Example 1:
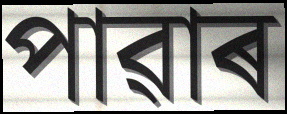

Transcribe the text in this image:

পাৱাৰ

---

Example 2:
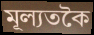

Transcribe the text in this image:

মূল্যতকৈ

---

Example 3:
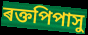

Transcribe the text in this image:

ৰক্তপিপাসু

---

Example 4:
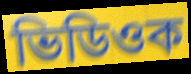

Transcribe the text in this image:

ভিডিওক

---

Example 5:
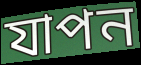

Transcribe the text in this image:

যাপন